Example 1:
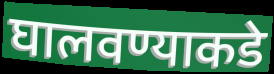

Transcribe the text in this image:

घालवण्याकडे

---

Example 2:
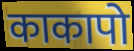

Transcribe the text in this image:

काकापो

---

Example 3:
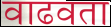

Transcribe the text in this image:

वाढवता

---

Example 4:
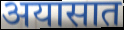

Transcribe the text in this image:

अयासात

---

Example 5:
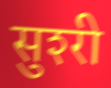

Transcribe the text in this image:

सुश्री